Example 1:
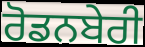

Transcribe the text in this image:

ਰੋਡਨਬੇਰੀ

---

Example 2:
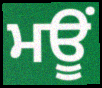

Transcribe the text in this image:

ਮਊਂ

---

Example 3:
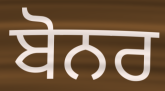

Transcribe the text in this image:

ਬੋਨਰ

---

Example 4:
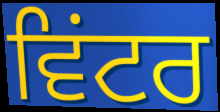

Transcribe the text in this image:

ਵਿਂਟਰ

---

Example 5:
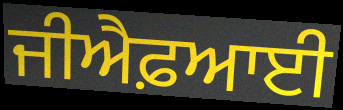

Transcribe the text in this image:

ਜੀਐਫ਼ਆਈ